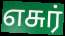
எசுர்